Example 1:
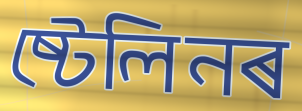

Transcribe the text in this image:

ষ্টেলিনৰ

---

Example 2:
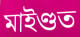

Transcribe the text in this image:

মাইণ্ডত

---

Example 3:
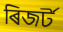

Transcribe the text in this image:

ৰিজৰ্ট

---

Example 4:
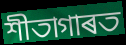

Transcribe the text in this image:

শীতাগাৰত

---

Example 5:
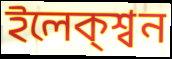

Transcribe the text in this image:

ইলেক্‌শ্বন